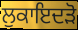
ਲੁਕਾਇਦੜੋ